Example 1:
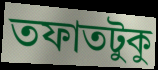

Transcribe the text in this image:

তফাতটুকু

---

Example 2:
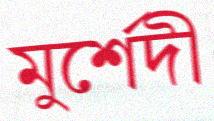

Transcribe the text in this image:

মুর্শেদী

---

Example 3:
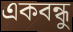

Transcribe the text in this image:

একবন্ধু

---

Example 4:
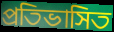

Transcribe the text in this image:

প্রতিভাসিত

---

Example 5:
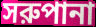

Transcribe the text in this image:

সরুপানা